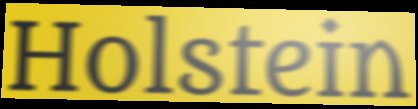
Holstein